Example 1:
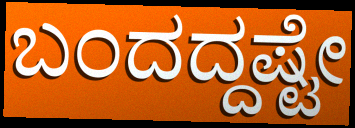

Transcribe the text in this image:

ಬಂದದ್ದಷ್ಟೇ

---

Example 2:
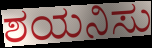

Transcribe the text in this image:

ಶಯನಿಸು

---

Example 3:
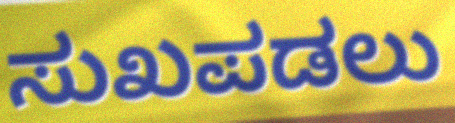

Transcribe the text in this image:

ಸುಖಪಡಲು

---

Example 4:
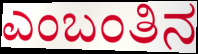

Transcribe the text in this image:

ಎಂಬಂತಿನ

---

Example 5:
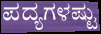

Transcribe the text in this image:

ಪದ್ಯಗಳಷ್ಟು